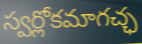
స్వర్లోకమాగచ్ఛ